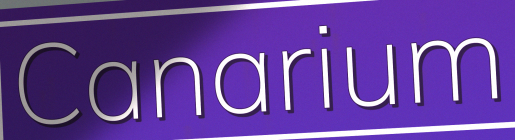
Canarium